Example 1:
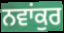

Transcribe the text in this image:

ਨਵਾਂਕੁਰ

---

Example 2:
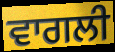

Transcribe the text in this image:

ਵਾਗਲੀ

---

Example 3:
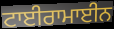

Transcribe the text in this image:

ਟਾਈਰਾਮਾਈਨ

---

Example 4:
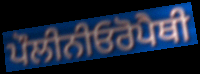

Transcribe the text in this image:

ਪੌਲੀਨੀਓਰੋਪੈਥੀ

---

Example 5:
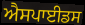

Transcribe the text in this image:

ਐਸਪਾਈਡਸ